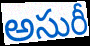
అసురీ